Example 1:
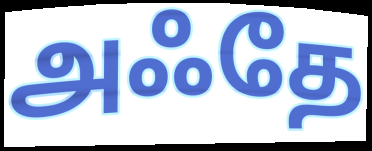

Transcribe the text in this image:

அஃதே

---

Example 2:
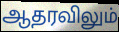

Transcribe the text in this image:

ஆதரவிலும்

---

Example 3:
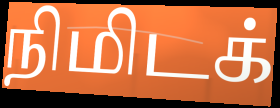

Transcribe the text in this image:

நிமிடக்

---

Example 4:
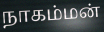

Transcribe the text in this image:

நாகம்மன்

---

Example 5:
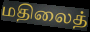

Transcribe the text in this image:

மதிலைத்